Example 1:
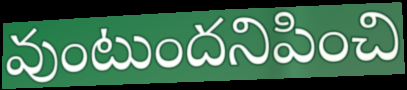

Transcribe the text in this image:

వుంటుందనిపించి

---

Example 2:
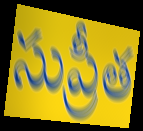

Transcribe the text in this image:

సుప్రీత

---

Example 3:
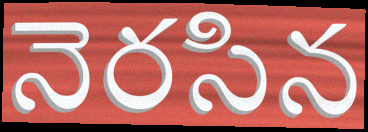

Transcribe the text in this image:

నెరసిన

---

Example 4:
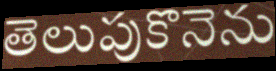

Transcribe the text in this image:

తెలుపుకొనెను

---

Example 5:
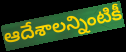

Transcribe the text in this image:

ఆదేశాలన్నింటికీ